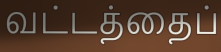
வட்டத்தைப்